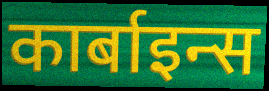
कार्बाइन्स